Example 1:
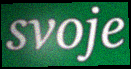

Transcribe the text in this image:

svoje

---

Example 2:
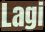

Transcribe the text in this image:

Lagi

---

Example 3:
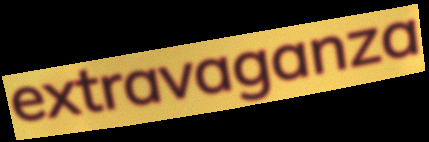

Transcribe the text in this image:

extravaganza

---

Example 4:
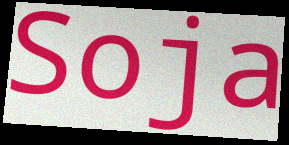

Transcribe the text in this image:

Soja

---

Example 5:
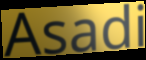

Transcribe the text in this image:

Asadi